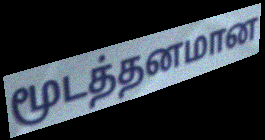
மூடத்தனமான